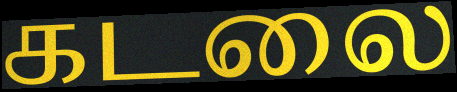
கடலை